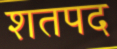
शतपद